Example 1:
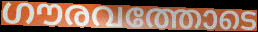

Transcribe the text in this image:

ഗൗരവത്തോടെ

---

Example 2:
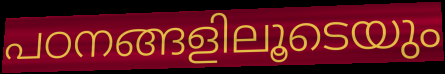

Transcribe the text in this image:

പഠനങ്ങളിലൂടെയും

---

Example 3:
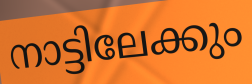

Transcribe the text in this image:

നാട്ടിലേക്കും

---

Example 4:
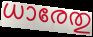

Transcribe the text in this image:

ധാരേതു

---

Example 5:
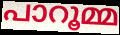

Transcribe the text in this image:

പാറൂമ്മ